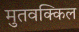
मुतवक्किल